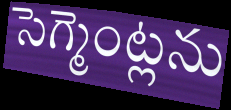
సెగ్మెంట్లను